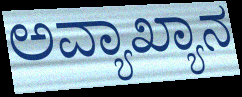
ಅವ್ಯಾಖ್ಯಾನ